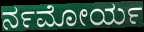
ರ್ನಮೋರ್ಯ